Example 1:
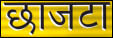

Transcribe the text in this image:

छाजटा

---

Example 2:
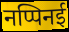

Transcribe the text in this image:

नप्पिनई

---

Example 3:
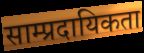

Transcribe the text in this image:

साम्प्रदायिकता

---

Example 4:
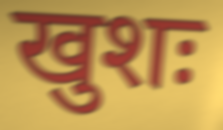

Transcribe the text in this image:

खुशः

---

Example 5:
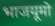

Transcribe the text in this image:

भाजयूमो